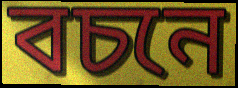
বচনে